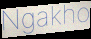
Ngakho